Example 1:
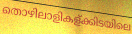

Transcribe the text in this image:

തൊഴിലാളികള്ക്കിടയിലെ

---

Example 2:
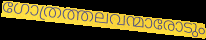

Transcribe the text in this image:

ഗോത്രത്തലവന്മാരോടും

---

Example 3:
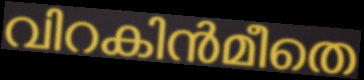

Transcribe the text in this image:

വിറകിൻമീതെ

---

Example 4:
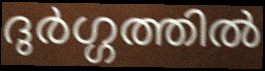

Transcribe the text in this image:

ദുർഗ്ഗത്തിൽ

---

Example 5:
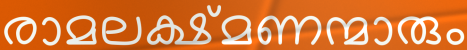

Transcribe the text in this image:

രാമലക്ഷ്മണന്മാരും